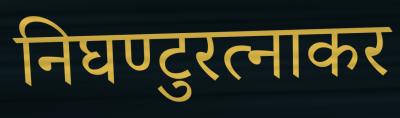
निघण्टुरत्नाकर